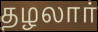
தழலார்